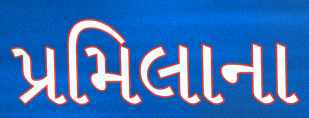
પ્રમિલાના